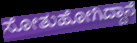
ಸೋತುಹೋಗಿದ್ದಾನೆ